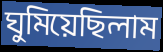
ঘুমিয়েছিলাম